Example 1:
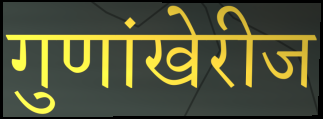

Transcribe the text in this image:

गुणांखेरीज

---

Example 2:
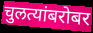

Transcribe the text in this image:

चुलत्यांबरोबर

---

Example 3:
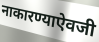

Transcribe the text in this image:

नाकारण्याऐवजी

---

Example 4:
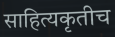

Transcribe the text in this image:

साहित्यकृतीच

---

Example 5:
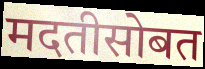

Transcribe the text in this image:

मदतीसोबत